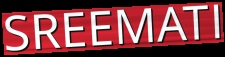
SREEMATI